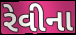
રેવીના